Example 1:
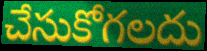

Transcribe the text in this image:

చేసుకోగలదు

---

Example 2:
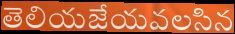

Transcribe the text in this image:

తెలియజేయవలసిన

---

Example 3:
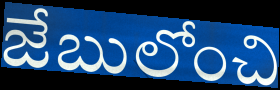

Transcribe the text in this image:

జేబులోంచి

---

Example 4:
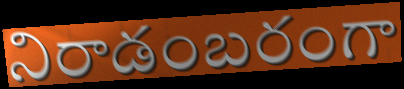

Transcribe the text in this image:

నిరాడంబరంగా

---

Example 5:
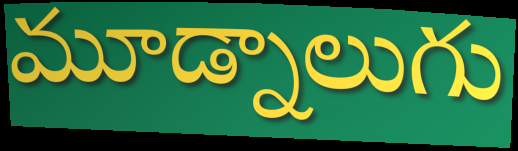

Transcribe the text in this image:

మూడ్నాలుగు